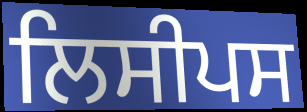
ਲਿਸੀਪਸ